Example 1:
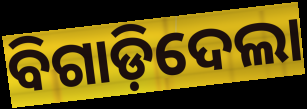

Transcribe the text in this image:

ବିଗାଡ଼ିଦେଲା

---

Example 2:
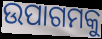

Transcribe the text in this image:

ଉପାଗମକୁ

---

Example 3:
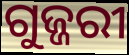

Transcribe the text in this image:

ଗୁଜ୍ଜରୀ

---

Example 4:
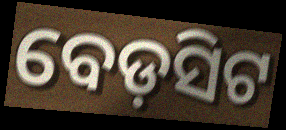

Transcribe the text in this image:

ବେଡ଼ସିଟ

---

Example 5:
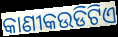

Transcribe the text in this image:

କାଣୀକଉଡିଟିଏ